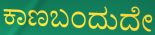
ಕಾಣಬಂದುದೇ